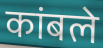
कांबले